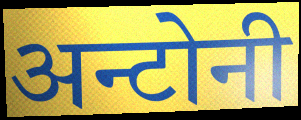
अन्टोनी